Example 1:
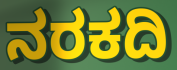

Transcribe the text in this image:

ನರಕದಿ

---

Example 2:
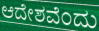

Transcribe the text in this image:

ಆದೇಶವೆಂದು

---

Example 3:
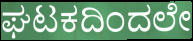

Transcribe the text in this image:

ಘಟಕದಿಂದಲೇ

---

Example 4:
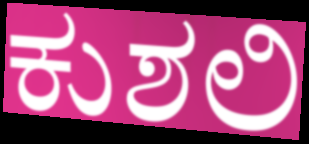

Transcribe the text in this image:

ಕುಶಲಿ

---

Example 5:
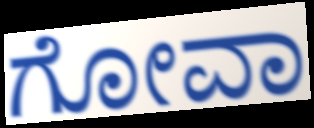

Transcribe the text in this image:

ಗೋವಾ